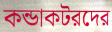
কন্ডাকটরদের